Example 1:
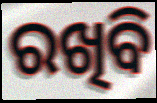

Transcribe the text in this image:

ରଖିବି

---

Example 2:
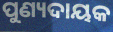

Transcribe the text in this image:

ପୁଣ୍ୟଦାୟକ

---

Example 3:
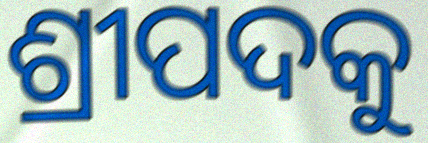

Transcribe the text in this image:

ଶ୍ରୀପଦକୁ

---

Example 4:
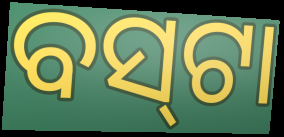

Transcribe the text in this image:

ବସ୍‍ଟା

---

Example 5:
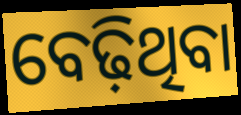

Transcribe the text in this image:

ବେଢ଼ିଥିବା